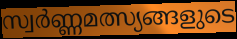
സ്വർണ്ണമത്സ്യങ്ങളുടെ